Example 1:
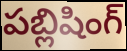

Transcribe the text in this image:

పబ్లిషింగ్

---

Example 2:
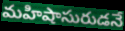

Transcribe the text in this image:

మహిషాసురుడనే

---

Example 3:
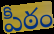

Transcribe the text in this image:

పీఠం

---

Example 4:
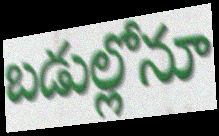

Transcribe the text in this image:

బడుల్లోనూ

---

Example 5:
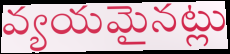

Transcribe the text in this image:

వ్యయమైనట్లు